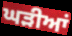
ਘੜੀਆਂ